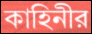
কাহিনীর